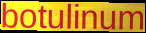
botulinum